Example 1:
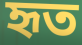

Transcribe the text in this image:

হৃত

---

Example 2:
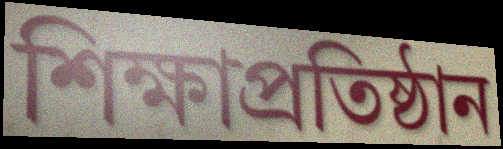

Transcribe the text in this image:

শিক্ষাপ্রতিষ্ঠান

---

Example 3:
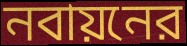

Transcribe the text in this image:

নবায়নের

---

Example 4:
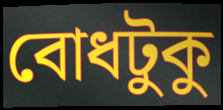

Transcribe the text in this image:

বোধটুকু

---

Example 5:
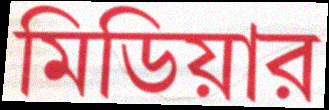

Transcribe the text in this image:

মিডিয়ার